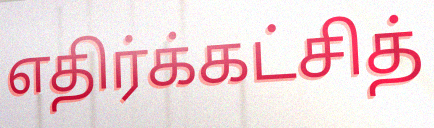
எதிர்க்கட்சித்